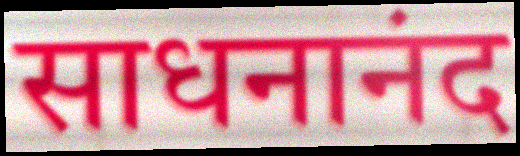
साधनानंद